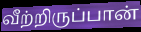
வீற்றிருப்பான்